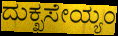
ದುಕ್ಖಸೇಯ್ಯಂ